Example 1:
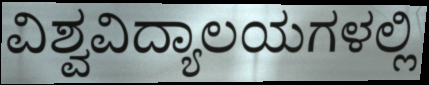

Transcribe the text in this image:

ವಿಶ್ವವಿದ್ಯಾಲಯಗಳಲ್ಲಿ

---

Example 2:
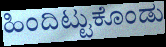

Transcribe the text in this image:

ಹಿಂದಿಟ್ಟುಕೊಂಡು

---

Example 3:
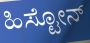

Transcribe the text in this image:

ಹಿಸ್ಟೋನ್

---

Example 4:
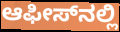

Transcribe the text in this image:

ಆಫೀಸ್‌ನಲ್ಲಿ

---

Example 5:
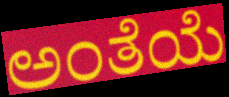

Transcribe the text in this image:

ಅಂತೆಯೆ